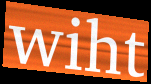
wiht